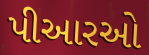
પીઆરઓ